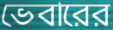
ভেবারের